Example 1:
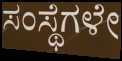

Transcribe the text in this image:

ಸಂಸ್ಥೆಗಳೇ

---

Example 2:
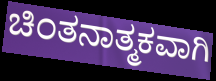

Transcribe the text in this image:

ಚಿಂತನಾತ್ಮಕವಾಗಿ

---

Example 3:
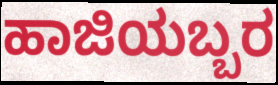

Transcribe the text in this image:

ಹಾಜಿಯಬ್ಬರ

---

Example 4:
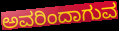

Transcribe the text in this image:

ಅವರಿಂದಾಗುವ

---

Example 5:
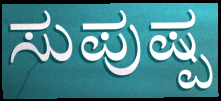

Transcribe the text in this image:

ಸುಪುಷ್ಪ